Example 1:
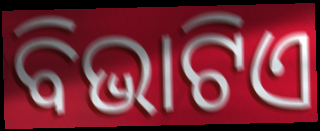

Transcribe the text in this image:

ବିଭାଟିଏ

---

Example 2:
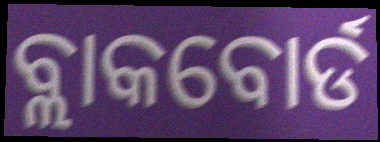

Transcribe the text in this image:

ବ୍ଲାକବୋର୍ଡ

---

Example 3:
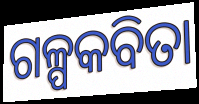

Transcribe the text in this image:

ଗଳ୍ପକବିତା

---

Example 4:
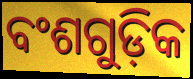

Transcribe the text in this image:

ବଂଶଗୁଡ଼ିକ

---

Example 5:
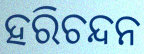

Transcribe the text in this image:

ହରିଚନ୍ଦନ